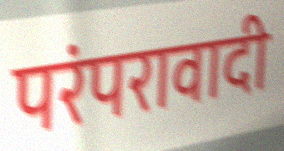
परंपरावादी